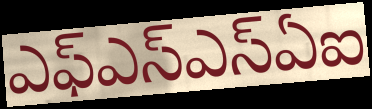
ఎఫ్ఎస్ఎస్ఏఐ